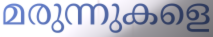
മരുന്നുകളെ